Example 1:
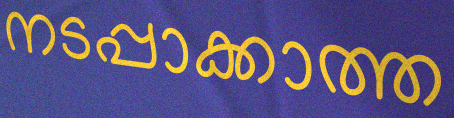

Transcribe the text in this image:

നടപ്പാക്കാത്ത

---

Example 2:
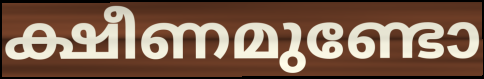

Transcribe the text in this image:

ക്ഷീണമുണ്ടോ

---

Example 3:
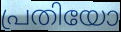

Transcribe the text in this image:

പ്രതിയോ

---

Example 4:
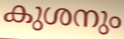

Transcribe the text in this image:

കുശനും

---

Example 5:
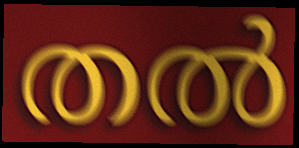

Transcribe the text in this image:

തൽ